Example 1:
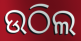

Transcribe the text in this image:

ଉଠିଲ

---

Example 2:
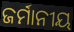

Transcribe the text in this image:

ଜର୍ମାନୀୟ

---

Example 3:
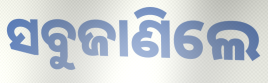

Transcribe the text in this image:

ସବୁଜାଣିଲେ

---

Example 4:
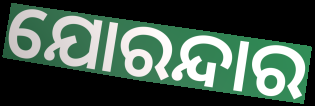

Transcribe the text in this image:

ଯୋରନ୍ଦାର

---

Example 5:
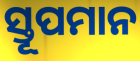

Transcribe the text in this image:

ସ୍ତୂପମାନ